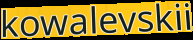
kowalevskii